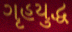
ગૃહયુદ્ધ